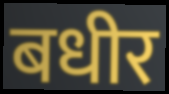
बधीर